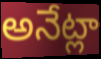
అనేట్లా